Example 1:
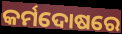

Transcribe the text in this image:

କର୍ମଦୋଷରେ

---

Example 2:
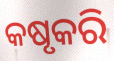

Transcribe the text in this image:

କଷୃକରି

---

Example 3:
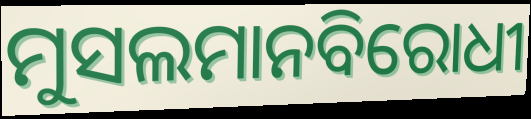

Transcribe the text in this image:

ମୁସଲମାନବିରୋଧୀ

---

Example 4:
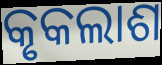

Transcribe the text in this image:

କୃକଲାଶ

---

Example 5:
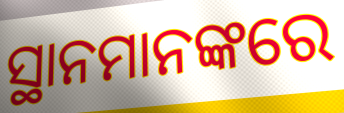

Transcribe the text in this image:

ସ୍ଥାନମାନଙ୍କରେ